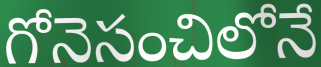
గోనెసంచిలోనే